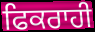
ਫਿਕਰਾਹੀ